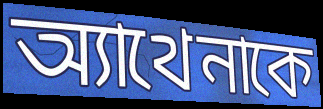
অ্যাথেনাকে